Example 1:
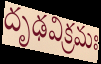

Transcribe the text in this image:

దృఢవిక్రమః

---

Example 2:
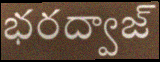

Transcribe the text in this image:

భరద్వాజ్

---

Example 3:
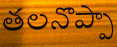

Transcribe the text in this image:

తలనొప్పా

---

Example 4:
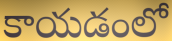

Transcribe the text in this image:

కాయడంలో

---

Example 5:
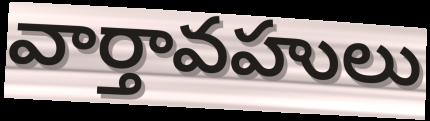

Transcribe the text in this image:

వార్తావహులు